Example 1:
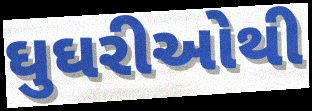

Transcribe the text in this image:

ઘુઘરીઓથી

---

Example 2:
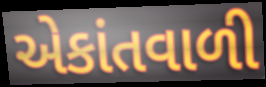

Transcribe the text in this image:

એકાંતવાળી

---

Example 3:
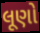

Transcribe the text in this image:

લૂણો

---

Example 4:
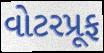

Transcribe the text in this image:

વોટરપ્રૂફ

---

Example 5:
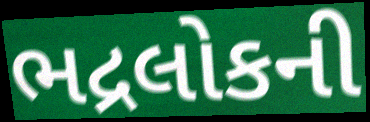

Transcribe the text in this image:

ભદ્રલોકની